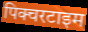
पिक्चरटाइम